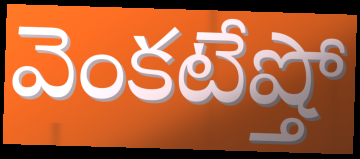
వెంకటేష్తో